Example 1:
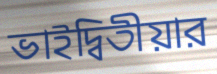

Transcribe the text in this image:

ভাইদ্বিতীয়ার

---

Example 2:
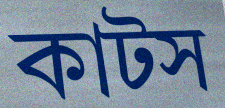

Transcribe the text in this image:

কাটস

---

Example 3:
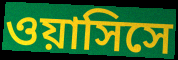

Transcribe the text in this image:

ওয়াসিসে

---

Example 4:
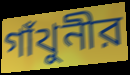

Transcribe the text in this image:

গাঁথুনীর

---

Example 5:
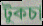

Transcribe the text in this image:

টুকচা